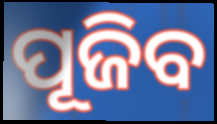
ପୂଜିବ